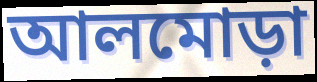
আলমোড়া